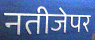
नतीजेपर